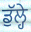
ਡੁੱਲ੍ਹੇ